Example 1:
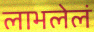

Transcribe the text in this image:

लाभलेलं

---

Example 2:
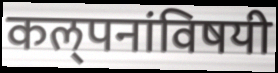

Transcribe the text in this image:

कल्पनांविषयी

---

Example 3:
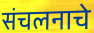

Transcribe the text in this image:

संचलनाचे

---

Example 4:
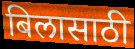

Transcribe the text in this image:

बिलासाठी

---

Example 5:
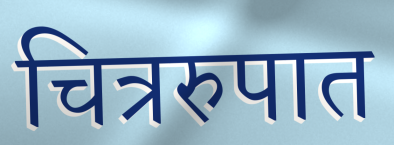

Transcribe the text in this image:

चित्ररुपात